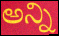
అన్ని